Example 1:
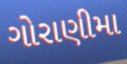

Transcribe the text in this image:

ગોરાણીમા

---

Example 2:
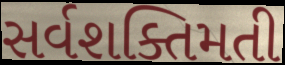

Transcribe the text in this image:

સર્વશક્તિમતી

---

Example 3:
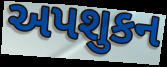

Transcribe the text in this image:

અપશુકન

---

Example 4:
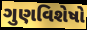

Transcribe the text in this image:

ગુણવિશેષો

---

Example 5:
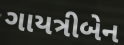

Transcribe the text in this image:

ગાયત્રીબેન